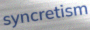
syncretism